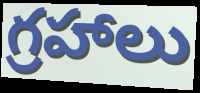
గ్రహాలు